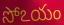
సోఽయం